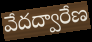
వేదద్వారేణ